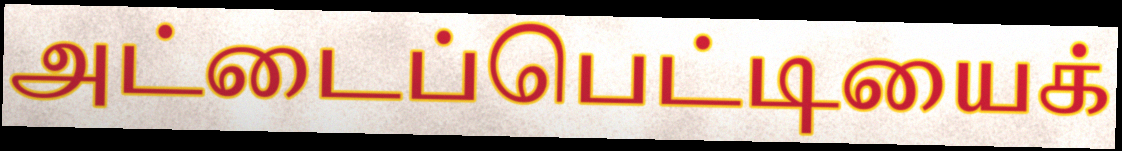
அட்டைப்பெட்டியைக்